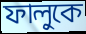
ফালুকে